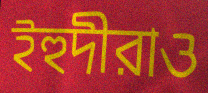
ইহুদীরাও